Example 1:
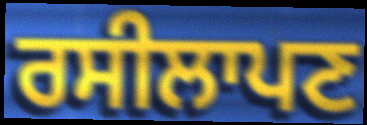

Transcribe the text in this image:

ਰਸੀਲਾਪਣ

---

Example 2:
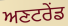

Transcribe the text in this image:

ਅਣਟਰੇਂਡ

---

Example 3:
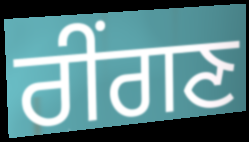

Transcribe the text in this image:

ਰੀਂਗਣ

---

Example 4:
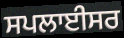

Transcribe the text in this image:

ਸਪਲਾਈਸਰ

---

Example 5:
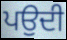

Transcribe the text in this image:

ਪਉਦੀ